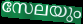
സേലയും